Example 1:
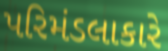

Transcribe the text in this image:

પરિમંડલાકારે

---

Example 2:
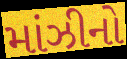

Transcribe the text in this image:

માંઝીનો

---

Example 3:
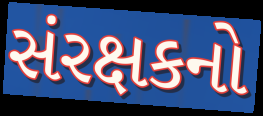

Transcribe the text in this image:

સંરક્ષકનો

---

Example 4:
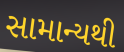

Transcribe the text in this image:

સામાન્યથી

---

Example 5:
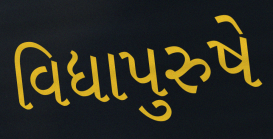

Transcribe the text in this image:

વિદ્યાપુરુષે